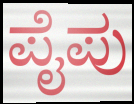
ಪೈಪು